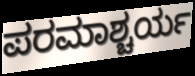
ಪರಮಾಶ್ಚರ್ಯ